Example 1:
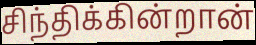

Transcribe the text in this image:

சிந்திக்கின்றான்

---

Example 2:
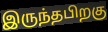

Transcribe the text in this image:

இருந்தபிறகு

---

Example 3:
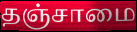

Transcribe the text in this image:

தஞ்சாமை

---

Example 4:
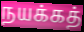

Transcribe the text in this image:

நயக்கத்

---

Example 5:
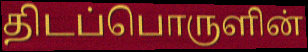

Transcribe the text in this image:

திடப்பொருளின்